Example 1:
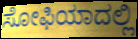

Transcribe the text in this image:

ಸೋಫಿಯಾದಲ್ಲಿ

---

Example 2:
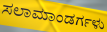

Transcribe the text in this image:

ಸಲಾಮಾಂಡರ್ಗಳು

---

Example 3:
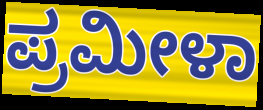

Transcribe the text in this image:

ಪ್ರಮೀಳಾ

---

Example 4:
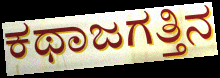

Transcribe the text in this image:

ಕಥಾಜಗತ್ತಿನ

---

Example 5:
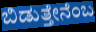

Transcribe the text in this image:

ಬಿಡುತ್ತೇನೆಂಬ